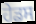
ਹੇਡਸ